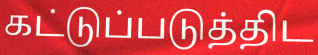
கட்டுப்படுத்திட